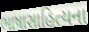
ભાષાસાહિત્યના